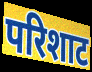
परिशाट